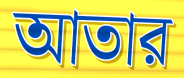
আতার